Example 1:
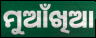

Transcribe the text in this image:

ମୁଆଁଖିଆ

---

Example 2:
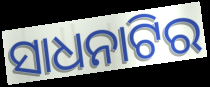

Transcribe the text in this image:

ସାଧନାଟିର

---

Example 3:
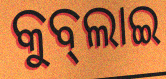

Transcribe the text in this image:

କୁବ୍‌ଲାଇ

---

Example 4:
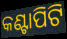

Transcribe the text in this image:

କଣ୍ଟାପିଟି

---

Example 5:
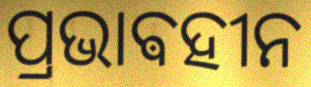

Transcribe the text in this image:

ପ୍ରଭାଵହୀନ